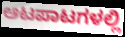
ಆಟಪಾಟಗಳಲ್ಲಿ